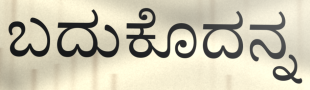
ಬದುಕೊದನ್ನ